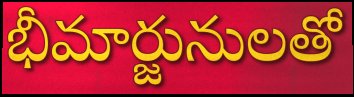
భీమార్జునులతో